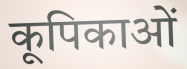
कूपिकाओं